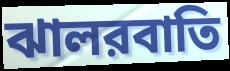
ঝালরবাতি